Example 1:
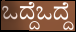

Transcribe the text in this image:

ಒದ್ದೆಒದ್ದೆ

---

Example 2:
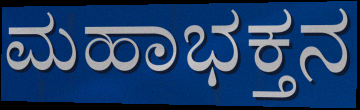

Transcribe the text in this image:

ಮಹಾಭಕ್ತನ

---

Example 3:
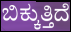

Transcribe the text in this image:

ಬಿಕ್ಕುತ್ತಿದೆ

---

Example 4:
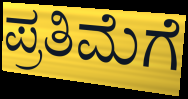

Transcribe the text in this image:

ಪ್ರತಿಮೆಗೆ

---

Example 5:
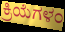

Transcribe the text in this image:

ಕ್ರಿಯೆಗಳಂ